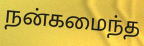
நன்கமைந்த